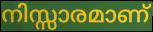
നിസ്സാരമാണ്